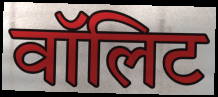
वॉलिट